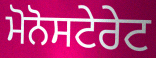
ਮੋਨੋਸਟੇਰੇਟ